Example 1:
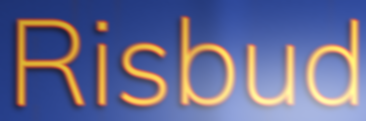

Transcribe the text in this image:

Risbud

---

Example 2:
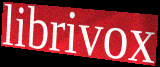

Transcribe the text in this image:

librivox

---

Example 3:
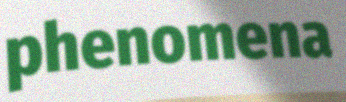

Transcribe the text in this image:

phenomena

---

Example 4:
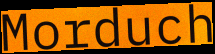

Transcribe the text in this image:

Morduch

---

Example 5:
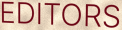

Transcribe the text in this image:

EDITORS